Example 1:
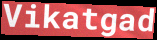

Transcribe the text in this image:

Vikatgad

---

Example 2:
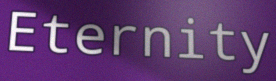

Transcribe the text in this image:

Eternity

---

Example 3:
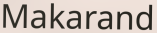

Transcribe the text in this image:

Makarand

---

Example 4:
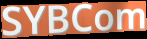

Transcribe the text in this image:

SYBCom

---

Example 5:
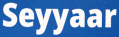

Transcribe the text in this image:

Seyyaar